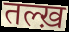
तल्ख़